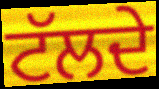
ਟੱਲਦੇ